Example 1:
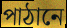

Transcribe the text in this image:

পাঠানে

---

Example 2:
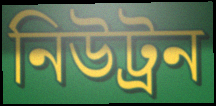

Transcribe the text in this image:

নিউট্ৰন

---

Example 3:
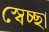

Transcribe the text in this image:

স্বেচ্ছা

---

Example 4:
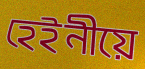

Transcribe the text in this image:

হেইনীয়ে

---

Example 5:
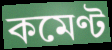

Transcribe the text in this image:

কমেণ্ট